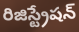
రిజిస్ట్రేషన్